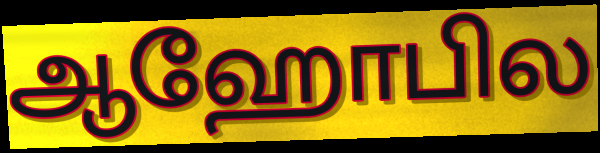
ஆஹோபில